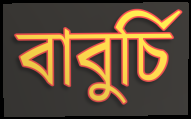
বাবুর্চি